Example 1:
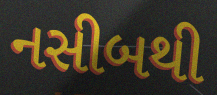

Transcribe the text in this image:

નસીબથી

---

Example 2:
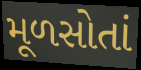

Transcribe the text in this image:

મૂળસોતાં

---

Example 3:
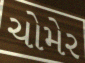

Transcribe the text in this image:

ચોમેર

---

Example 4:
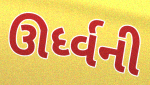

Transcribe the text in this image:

ઊર્ધ્વની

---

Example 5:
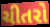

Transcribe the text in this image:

ચીતરો